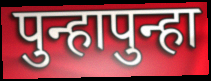
पुन्हापुन्हा